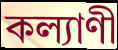
কল্যাণী